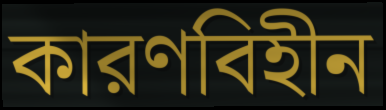
কারণবিহীন